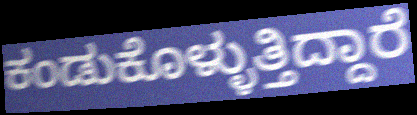
ಕಂಡುಕೊಳ್ಳುತ್ತಿದ್ದಾರೆ